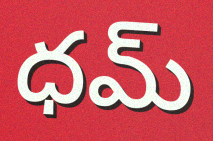
ధమ్